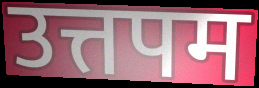
उत्तपम